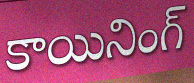
కాయినింగ్